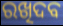
ରଖିଦବ